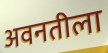
अवनतीला